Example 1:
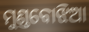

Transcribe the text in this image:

ମୁଣ୍ଡବୋଝିଆ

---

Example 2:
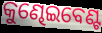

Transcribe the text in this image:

କୁଣ୍ଢେଇବେଣ୍ଟ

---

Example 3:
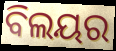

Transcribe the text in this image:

ବିଲୟର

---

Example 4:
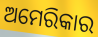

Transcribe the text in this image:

ଅମେରିକାର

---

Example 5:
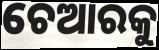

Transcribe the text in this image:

ଚେଆରକୁ